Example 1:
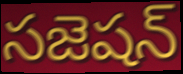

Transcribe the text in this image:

సజెషన్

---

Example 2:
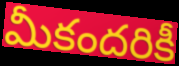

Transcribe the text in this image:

మీకందరికీ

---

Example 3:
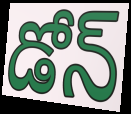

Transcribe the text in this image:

డోన్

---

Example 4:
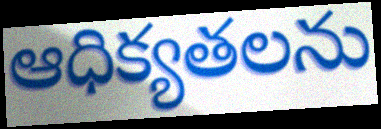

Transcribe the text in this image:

ఆధిక్యతలను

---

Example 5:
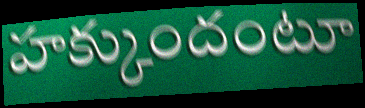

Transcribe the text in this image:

హక్కుందంటూ